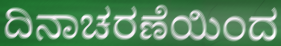
ದಿನಾಚರಣೆಯಿಂದ